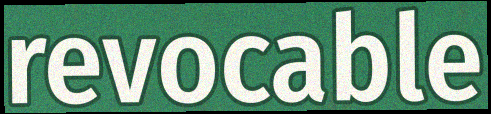
revocable